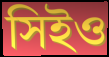
সিইও